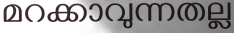
മറക്കാവുന്നതല്ല